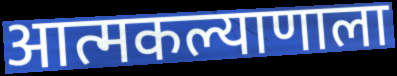
आत्मकल्याणाला